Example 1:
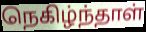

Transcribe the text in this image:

நெகிழ்ந்தாள்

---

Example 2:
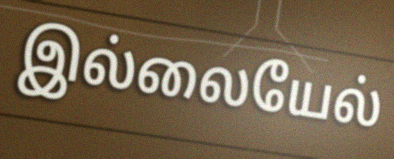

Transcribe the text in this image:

இல்லையேல்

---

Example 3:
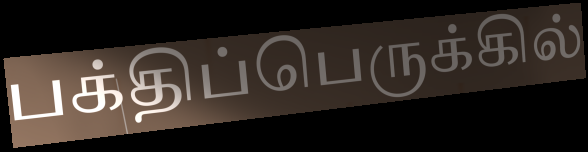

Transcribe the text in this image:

பக்திப்பெருக்கில்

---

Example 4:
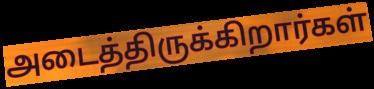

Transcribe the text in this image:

அடைத்திருக்கிறார்கள்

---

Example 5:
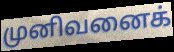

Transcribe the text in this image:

முனிவனைக்